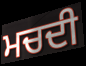
ਮਚਦੀ